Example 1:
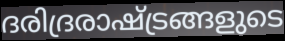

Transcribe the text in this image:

ദരിദ്രരാഷ്ട്രങ്ങളുടെ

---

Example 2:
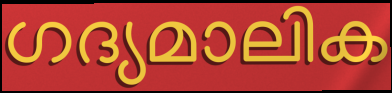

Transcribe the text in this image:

ഗദ്യമാലിക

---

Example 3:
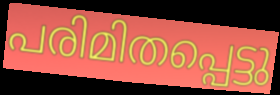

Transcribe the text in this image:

പരിമിതപ്പെട്ടു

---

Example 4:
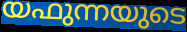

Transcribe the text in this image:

യഫുന്നയുടെ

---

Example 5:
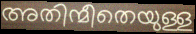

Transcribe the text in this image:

അതിന്മീതെയുള്ള